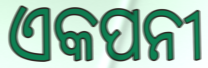
ଏକପନୀ